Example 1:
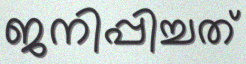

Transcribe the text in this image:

ജനിപ്പിച്ചത്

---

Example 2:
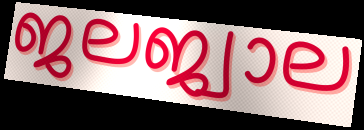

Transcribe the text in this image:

ജലജ്വാല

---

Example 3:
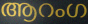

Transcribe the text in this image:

ആറംഗ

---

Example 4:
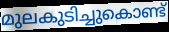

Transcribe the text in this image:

മുലകുടിച്ചുകൊണ്ട്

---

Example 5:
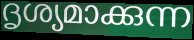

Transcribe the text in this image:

ദൃശ്യമാക്കുന്ന